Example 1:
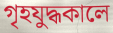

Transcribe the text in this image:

গৃহযুদ্ধকালে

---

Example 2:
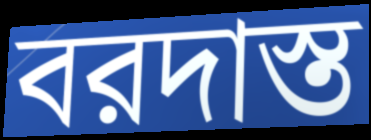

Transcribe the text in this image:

বরদাস্ত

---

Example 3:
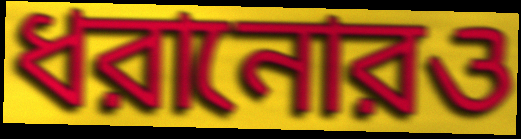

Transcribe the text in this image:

ধরানোরও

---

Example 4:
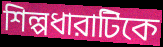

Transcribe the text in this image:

শিল্পধারাটিকে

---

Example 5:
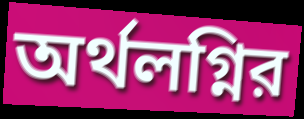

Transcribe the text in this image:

অর্থলগ্নির